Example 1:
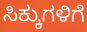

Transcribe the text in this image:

ಸಿಕ್ಕುಗಳಿಗೆ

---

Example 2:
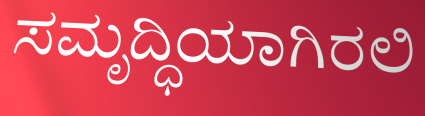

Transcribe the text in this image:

ಸಮೃದ್ಧಿಯಾಗಿರಲಿ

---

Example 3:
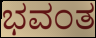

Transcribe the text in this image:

ಭವಂತ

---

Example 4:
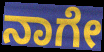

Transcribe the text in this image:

ನಾಗೇ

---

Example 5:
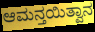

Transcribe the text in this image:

ಆಮನ್ತಯಿತ್ವಾನ